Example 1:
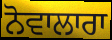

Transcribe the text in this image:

ਨੋਵਾਲਾਰਾ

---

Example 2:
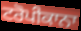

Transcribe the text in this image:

ਟਰੋਪੀਕਾਨਾ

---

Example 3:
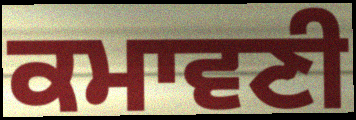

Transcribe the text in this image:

ਕਮਾਵਣੀ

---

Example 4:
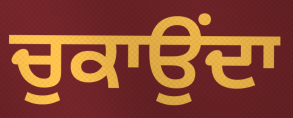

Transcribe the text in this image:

ਚੁਕਾਉਂਦਾ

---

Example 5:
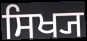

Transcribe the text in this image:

ਸਿਖ੍ਯ